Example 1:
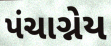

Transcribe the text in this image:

પંચાગ્નેય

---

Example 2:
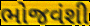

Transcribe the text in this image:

ભોજવંશી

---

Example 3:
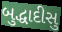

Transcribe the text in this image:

બુદ્ધાદીસુ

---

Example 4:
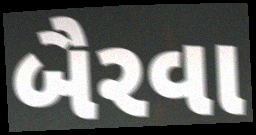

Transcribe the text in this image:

બૈરવા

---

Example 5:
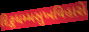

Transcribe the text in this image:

દિટ્ઠધમ્મસુખવિહારો